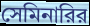
সেমিনারির